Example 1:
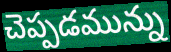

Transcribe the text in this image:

చెప్పడమున్ను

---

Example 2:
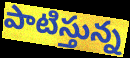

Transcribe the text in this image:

పాటిస్తున్న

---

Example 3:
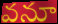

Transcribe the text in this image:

వనూ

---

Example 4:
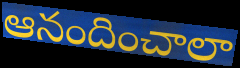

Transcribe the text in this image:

ఆనందించాలా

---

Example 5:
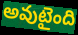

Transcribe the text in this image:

అవుటైంది